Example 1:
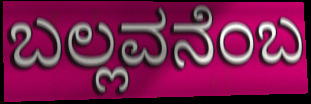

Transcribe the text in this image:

ಬಲ್ಲವನೆಂಬ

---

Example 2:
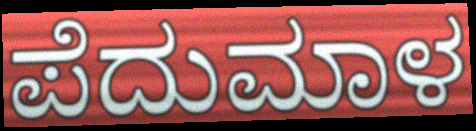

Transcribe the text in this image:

ಪೆದುಮಾಳ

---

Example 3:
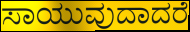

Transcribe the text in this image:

ಸಾಯುವುದಾದರೆ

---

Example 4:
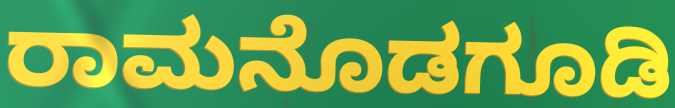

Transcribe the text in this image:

ರಾಮನೊಡಗೂಡಿ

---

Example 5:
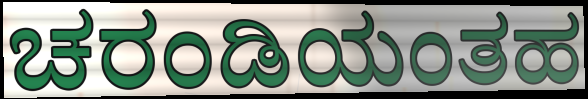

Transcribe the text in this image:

ಚರಂಡಿಯಂತಹ